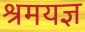
श्रमयज्ञ